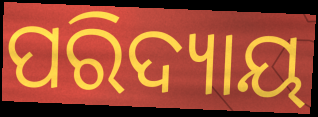
ପରିଦ୍ୟାୟ